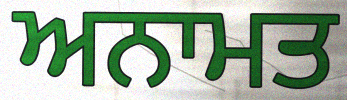
ਅਨਾਮਤ